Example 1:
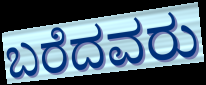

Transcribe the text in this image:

ಬರೆದವರು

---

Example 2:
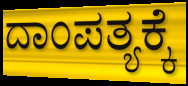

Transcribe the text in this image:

ದಾಂಪತ್ಯಕ್ಕೆ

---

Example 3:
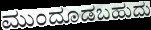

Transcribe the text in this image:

ಮುಂದೂಡಬಹುದು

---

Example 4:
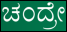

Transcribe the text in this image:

ಚಂದ್ರೇ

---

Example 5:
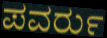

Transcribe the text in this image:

ಪವರ್ರು